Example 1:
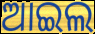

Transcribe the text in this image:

ଆଇଲ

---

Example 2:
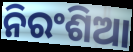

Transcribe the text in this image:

ନିରଂଶିଆ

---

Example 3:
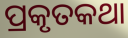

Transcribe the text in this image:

ପ୍ରକୃତକଥା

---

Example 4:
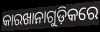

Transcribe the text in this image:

କାରଖାନାଗୁଡ଼ିକରେ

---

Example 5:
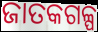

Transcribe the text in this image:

ଜାତକଗଳ୍ପ